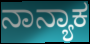
ನಾನ್ಯಾಕ